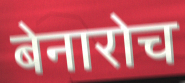
बेनारोच